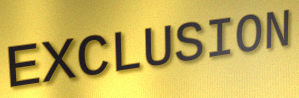
EXCLUSION